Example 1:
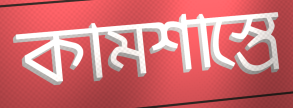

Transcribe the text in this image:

কামশাস্ত্রে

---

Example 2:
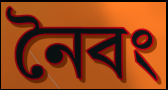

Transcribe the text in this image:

নৈবং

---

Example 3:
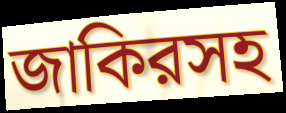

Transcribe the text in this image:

জাকিরসহ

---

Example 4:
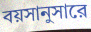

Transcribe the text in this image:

বয়সানুসারে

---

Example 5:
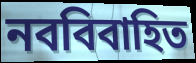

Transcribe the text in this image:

নববিবাহিত